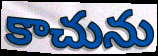
కాచును